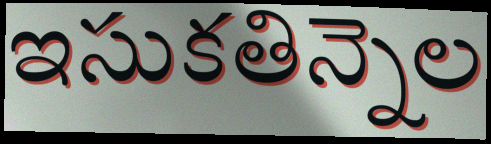
ఇసుకతిన్నెల